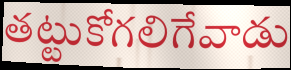
తట్టుకోగలిగేవాడు